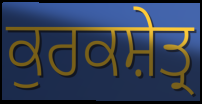
ਕੁਰਕਸ਼ੇਤ੍ਰ